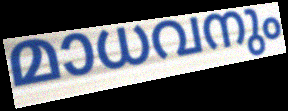
മാധവനും